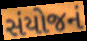
સંયોજનં